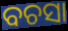
ବଚସା